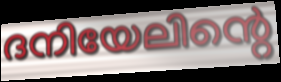
ദനിയേലിന്റെ